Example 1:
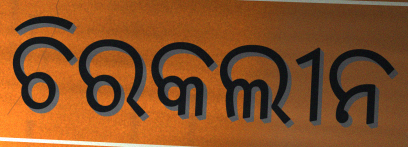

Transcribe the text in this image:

ଚିରକଲୀନ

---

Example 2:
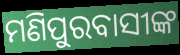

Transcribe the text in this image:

ମଣିପୁରବାସୀଙ୍କ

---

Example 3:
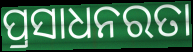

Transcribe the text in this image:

ପ୍ରସାଧନରତା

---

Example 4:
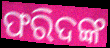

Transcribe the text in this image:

ଫରିଦଙ୍କ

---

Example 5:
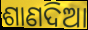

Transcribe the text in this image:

ଶାଣଦିଆ